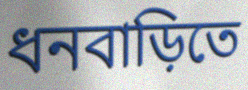
ধনবাড়িতে